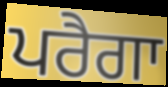
ਪਰੈਗਾ